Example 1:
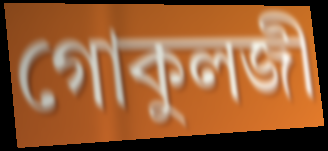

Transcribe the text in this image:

গোকুলজী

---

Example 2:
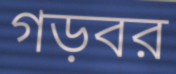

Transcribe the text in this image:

গড়বর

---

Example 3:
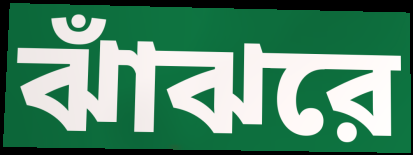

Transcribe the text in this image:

ঝাঁঝরে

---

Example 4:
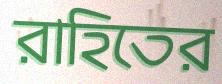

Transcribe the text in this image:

রাহিতের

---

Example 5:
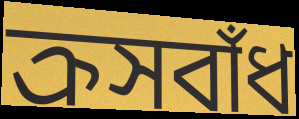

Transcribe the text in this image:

ক্রসবাঁধ